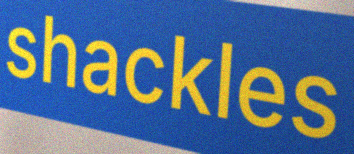
shackles